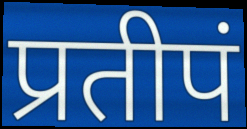
प्रतीपं